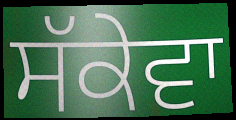
ਸੱਕੇਵਾ